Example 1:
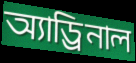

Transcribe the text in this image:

অ্যাড্রিনাল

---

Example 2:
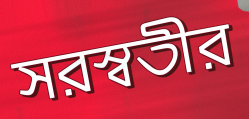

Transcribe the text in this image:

সরস্বতীর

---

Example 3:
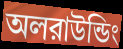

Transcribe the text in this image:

অলরাউন্ডিং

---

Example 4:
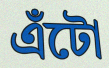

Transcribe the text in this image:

এঁটো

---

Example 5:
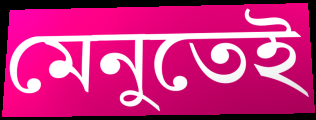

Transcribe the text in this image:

মেনুতেই